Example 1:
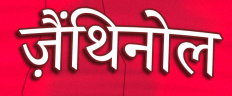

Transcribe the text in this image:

ज़ैंथिनोल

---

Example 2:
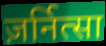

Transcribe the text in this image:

ज़र्नित्सा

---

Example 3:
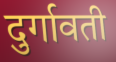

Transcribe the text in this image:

दुर्गावती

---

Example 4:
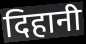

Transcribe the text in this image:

दिहानी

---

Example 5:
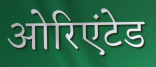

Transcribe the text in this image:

ओरिएंटेड